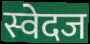
स्वेदज